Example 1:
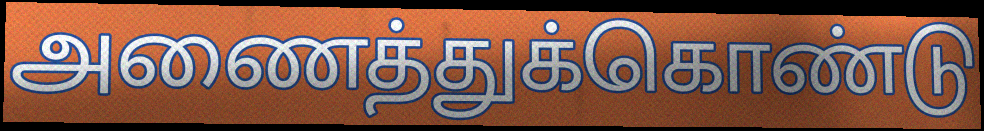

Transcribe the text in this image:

அணைத்துக்கொண்டு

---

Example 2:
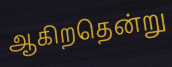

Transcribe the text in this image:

ஆகிறதென்று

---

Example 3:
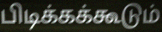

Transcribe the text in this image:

பிடிக்கக்கூடும்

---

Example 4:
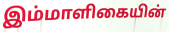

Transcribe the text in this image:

இம்மாளிகையின்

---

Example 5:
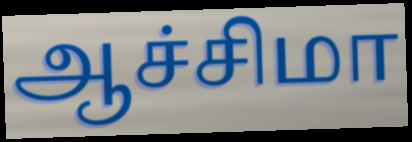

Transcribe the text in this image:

ஆச்சிமா